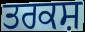
ਤਰਕਸ਼